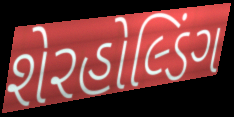
શેરહોલ્ડિંગ